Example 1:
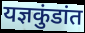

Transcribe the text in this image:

यज्ञकुंडांत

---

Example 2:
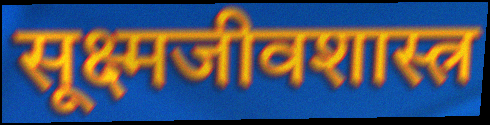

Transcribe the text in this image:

सूक्ष्मजीवशास्त्र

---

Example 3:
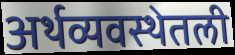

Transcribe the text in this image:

अर्थव्यवस्थेतली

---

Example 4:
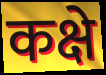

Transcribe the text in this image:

कक्षे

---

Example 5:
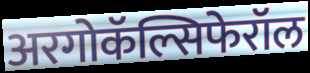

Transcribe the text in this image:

अरगोकॅल्सिफेरॉल